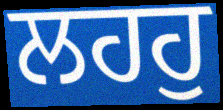
ਲਹਹੁ